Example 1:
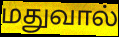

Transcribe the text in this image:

மதுவால்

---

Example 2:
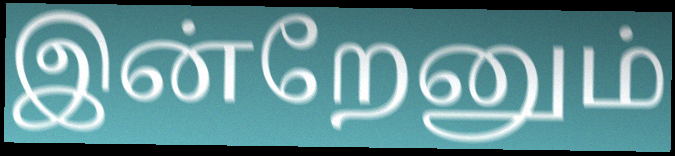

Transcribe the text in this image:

இன்றேனும்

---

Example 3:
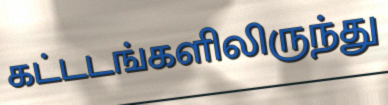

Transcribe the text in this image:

கட்டடங்களிலிருந்து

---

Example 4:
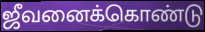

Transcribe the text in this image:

ஜீவனைக்கொண்டு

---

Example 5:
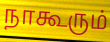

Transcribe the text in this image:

நாகூரும்